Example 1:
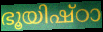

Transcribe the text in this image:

ഭൂയിഷ്ഠാ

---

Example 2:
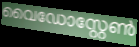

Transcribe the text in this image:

വൈഡോസ്റ്റേൺ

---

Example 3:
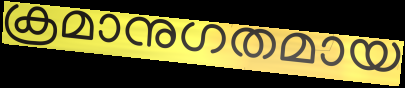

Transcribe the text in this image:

ക്രമാനുഗതമായ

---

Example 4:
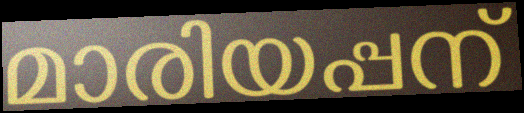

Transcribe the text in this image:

മാരിയപ്പന്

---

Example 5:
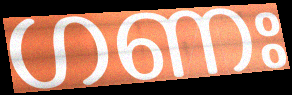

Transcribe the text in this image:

ഗണഃ